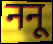
ननू